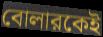
বোলারকেই